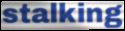
stalking